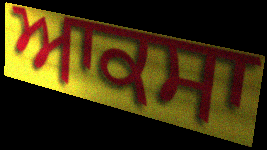
ਆਕਸਾ